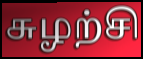
சுழற்சி